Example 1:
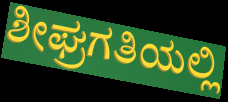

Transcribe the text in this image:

ಶೀಘ್ರಗತಿಯಲ್ಲಿ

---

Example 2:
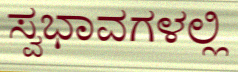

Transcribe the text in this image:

ಸ್ವಭಾವಗಳಲ್ಲಿ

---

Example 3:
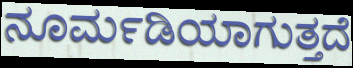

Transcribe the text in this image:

ನೂರ್ಮಡಿಯಾಗುತ್ತದೆ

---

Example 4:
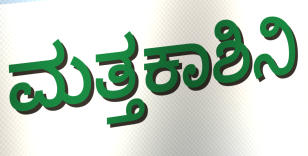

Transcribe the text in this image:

ಮತ್ತಕಾಶಿನಿ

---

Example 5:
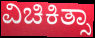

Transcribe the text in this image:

ವಿಚಿಕಿತ್ಸಾ